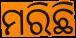
ମରିଛି